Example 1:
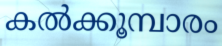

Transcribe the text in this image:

കൽക്കൂമ്പാരം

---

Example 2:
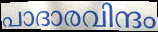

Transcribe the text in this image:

പാദാരവിന്ദം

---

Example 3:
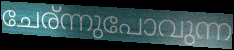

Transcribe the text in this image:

ചേര്ന്നുപോവുന്ന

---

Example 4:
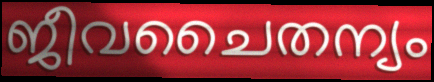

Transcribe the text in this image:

ജീവചൈതന്യം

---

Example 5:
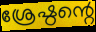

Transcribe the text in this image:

ശ്രേഷ്ഠന്റെ